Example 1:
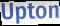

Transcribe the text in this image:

Upton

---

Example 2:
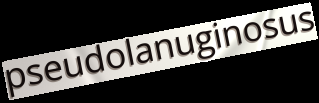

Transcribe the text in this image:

pseudolanuginosus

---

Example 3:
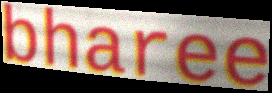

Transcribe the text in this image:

bharee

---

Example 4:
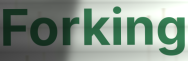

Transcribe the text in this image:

Forking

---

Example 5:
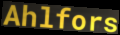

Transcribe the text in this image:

Ahlfors